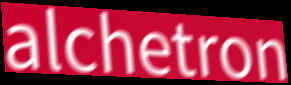
alchetron